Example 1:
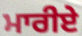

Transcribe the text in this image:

ਮਾਰੀਏ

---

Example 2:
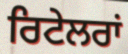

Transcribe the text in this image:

ਰਿਟੇਲਰਾਂ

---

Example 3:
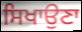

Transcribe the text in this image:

ਸਿਖਾਉਣਾ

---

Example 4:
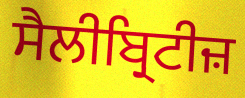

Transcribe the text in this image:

ਸੈਲੀਬ੍ਰਿਟੀਜ਼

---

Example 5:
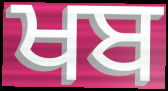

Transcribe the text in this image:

ਖਬ